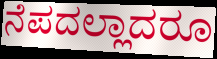
ನೆಪದಲ್ಲಾದರೂ